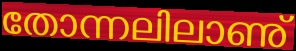
തോന്നലിലാണു്